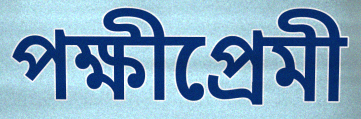
পক্ষীপ্রেমী